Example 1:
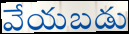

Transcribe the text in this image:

వేయబడు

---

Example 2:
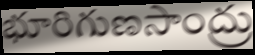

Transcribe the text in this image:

భూరిగుణసాంద్రు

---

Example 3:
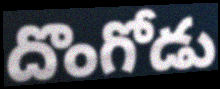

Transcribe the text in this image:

దొంగోడు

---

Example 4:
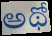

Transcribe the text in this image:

అథో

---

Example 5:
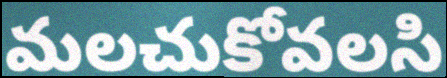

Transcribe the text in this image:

మలచుకోవలసి